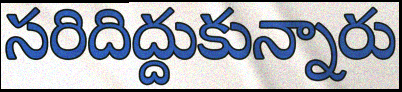
సరిదిద్దుకున్నారు